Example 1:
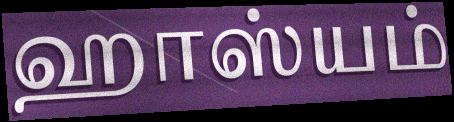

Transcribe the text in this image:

ஹாஸ்யம்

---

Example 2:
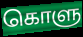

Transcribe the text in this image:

கொளு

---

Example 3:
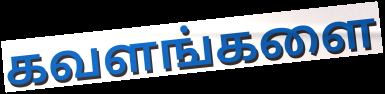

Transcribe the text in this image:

கவளங்களை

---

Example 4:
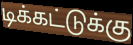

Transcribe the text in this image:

டிக்கட்டுக்கு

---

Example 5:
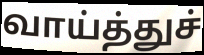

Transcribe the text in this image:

வாய்த்துச்